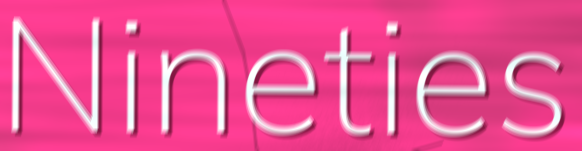
Nineties